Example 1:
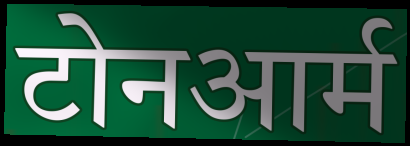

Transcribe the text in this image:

टोनआर्म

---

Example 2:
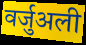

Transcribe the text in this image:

वर्जुअली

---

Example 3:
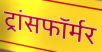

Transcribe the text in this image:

ट्रांसफॉर्मर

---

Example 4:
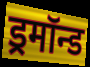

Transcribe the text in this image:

ड्रमॉन्ड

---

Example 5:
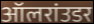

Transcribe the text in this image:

ऑलरांउडर